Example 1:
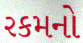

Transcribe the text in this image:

રકમનો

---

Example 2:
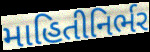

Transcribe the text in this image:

માહિતીનિર્ભર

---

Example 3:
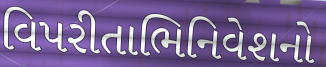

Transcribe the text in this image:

વિપરીતાભિનિવેશનો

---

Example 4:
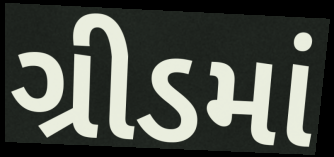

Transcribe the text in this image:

ગ્રીડમાં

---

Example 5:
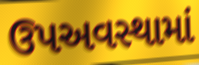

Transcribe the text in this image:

ઉપઅવસ્થામાં